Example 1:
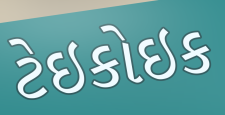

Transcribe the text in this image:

ટેઇકોઇક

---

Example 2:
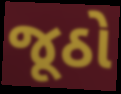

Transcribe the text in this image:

જૂઠો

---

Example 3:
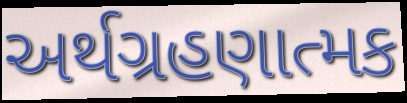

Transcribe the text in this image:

અર્થગ્રહણાત્મક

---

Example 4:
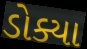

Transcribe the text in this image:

ડોક્યા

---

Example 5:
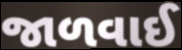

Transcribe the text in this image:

જાળવાઈ